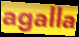
agalla